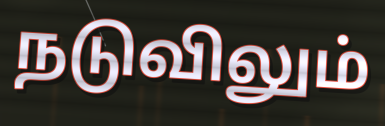
நடுவிலும்